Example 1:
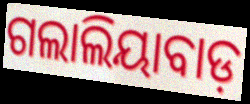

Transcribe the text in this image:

ଗଲାଲିୟାବାଡ଼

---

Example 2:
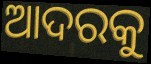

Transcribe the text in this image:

ଆଦରକୁ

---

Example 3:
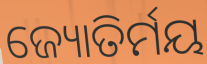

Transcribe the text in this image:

ଜ୍ୟୋତିର୍ମୟ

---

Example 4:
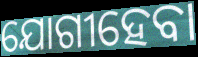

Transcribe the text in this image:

ଯୋଗୀହେବା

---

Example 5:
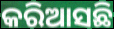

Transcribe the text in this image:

କରିଆସଛି